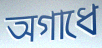
অগাধে